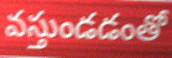
వస్తుండడంతో